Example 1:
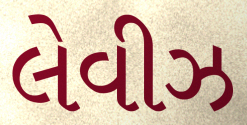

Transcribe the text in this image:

લેવીઝ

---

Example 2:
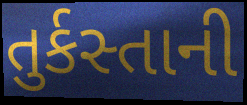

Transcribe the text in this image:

તુર્કસ્તાની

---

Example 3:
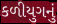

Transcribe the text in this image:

કળીયુગનું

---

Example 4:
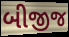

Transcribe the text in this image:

બીજીજ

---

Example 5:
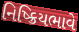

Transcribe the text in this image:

નિષ્ક્રિયભાવે